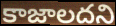
కాజాలదని